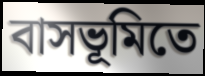
বাসভূমিতে